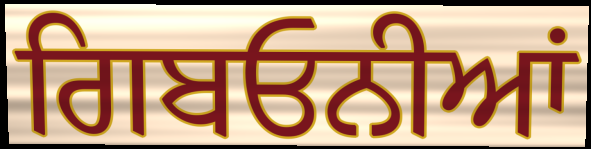
ਗਿਬਓਨੀਆਂ